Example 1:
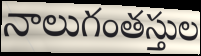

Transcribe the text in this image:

నాలుగంతస్తుల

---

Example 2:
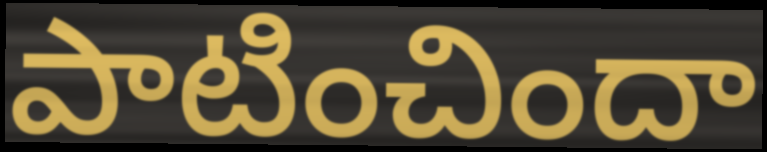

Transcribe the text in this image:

పాటించిందా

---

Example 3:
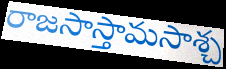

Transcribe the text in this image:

రాజసాస్తామసాశ్చ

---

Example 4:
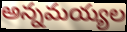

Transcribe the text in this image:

అన్నమయ్యల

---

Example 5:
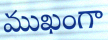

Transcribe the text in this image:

ముఖంగా